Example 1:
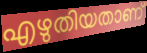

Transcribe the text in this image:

എഴുതിയതാണ്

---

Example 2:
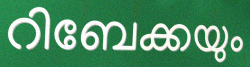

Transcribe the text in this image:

റിബേക്കയും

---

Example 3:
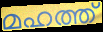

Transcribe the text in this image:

മഹത്ത്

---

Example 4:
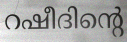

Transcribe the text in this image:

റഷീദിന്റെ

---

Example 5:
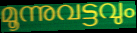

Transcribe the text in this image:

മൂന്നുവട്ടവും